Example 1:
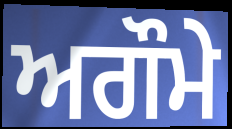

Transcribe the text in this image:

ਅਗੌਮੇ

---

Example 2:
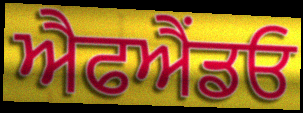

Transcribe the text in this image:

ਐਫਐਂਡਓ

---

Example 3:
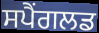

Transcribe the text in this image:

ਸਪੈਂਗਲਡ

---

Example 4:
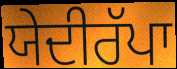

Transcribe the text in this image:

ਯੇਦੀਰੱਪਾ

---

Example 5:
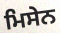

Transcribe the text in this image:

ਮਿਸੇਨ